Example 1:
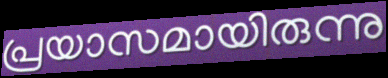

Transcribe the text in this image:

പ്രയാസമായിരുന്നു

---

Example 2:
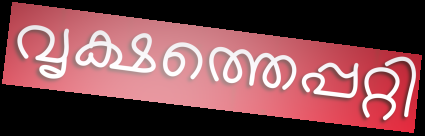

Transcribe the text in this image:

വൃക്ഷത്തെപ്പറ്റി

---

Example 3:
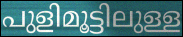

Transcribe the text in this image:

പുളിമൂട്ടിലുള്ള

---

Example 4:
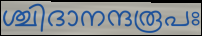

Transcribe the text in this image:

ശ്ചിദാനന്ദരൂപഃ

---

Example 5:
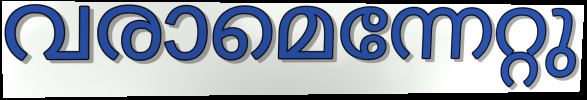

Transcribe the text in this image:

വരാമെന്നേറ്റു